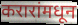
करारांमधून